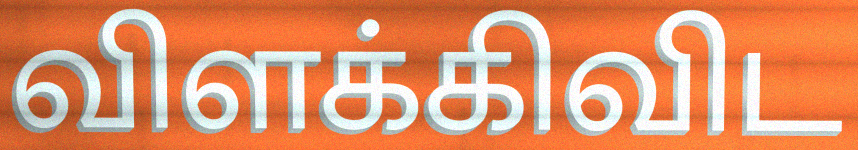
விளக்கிவிட